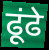
ढूंढे